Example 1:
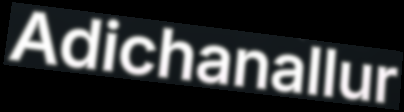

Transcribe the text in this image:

Adichanallur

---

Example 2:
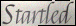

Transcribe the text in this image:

Startled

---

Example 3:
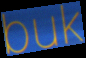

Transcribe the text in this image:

buk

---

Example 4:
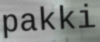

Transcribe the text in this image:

pakki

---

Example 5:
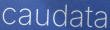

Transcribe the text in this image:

caudata